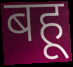
बहू